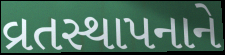
વ્રતસ્થાપનાને